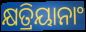
କ୍ଷତ୍ରିୟାନାଂ